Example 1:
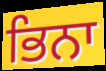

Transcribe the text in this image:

ਭਿਨਾ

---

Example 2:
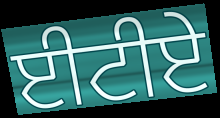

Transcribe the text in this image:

ਈਟੀਏ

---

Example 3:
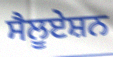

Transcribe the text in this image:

ਸੈਲੂਏਸ਼ਨ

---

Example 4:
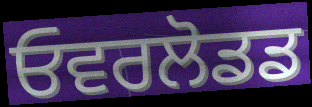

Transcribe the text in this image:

ਓਵਰਲੋਡਡ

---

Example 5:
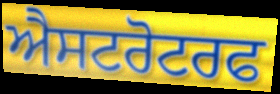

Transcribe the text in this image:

ਐਸਟਰੋਟਰਫ